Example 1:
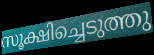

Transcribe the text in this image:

സൂക്ഷിച്ചെടുത്തു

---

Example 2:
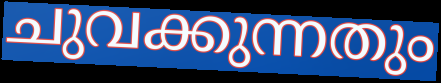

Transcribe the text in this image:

ചുവക്കുന്നതും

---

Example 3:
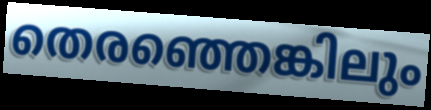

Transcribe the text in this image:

തെരഞ്ഞെങ്കിലും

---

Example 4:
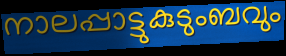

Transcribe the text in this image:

നാലപ്പാട്ടുകുടുംബവും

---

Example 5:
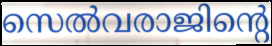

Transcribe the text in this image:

സെൽവരാജിന്റെ